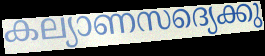
കല്യാണസദ്യെക്കു